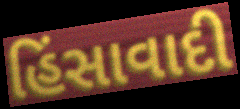
હિંસાવાદી